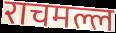
राचमल्ल